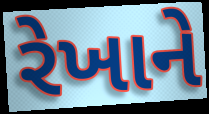
રેખાને